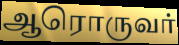
ஆரொருவர்